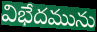
విభేదమును